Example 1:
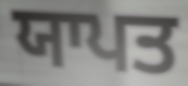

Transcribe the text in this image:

ਯਾਪਤ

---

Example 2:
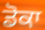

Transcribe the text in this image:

ਡੋਕਾ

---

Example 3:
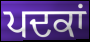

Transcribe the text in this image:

ਪਦਕਾਂ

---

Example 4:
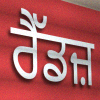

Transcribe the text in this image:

ਰੈੱਡਜ਼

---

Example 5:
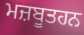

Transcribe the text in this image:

ਮਜ਼ਬੂਤਹਨ